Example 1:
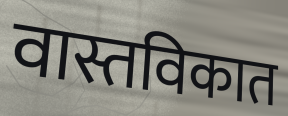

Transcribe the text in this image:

वास्तविकात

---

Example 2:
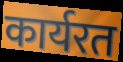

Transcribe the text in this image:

कार्यरत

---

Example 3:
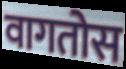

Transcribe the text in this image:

वागतोस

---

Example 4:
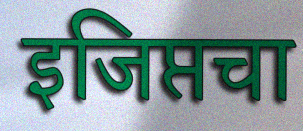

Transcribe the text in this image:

इजिप्तचा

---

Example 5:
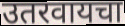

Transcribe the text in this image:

उतरवायचा